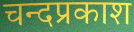
चन्दप्रकाश